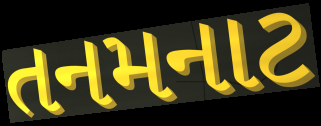
તનમનાટ